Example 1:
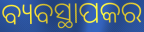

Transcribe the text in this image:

ବ୍ୟବସ୍ଥାପକର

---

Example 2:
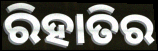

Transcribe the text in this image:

ରିହାତିର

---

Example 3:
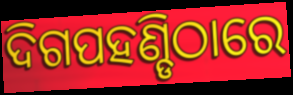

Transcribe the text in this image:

ଦିଗପହଣ୍ଡିଠାରେ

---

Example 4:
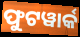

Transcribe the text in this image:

ଫୁଟୱାର୍କ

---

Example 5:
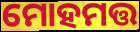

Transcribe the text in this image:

ମୋହମତ୍ତ